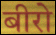
बीरो